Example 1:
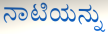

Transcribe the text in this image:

ನಾಟಿಯನ್ನು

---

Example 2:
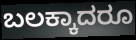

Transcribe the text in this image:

ಬಲಕ್ಕಾದರೂ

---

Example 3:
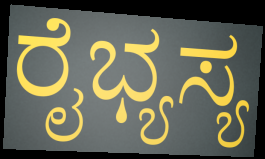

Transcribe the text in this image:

ರೈಭ್ಯಸ್ಯ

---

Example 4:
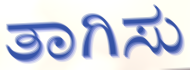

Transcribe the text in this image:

ತಾಗಿಸು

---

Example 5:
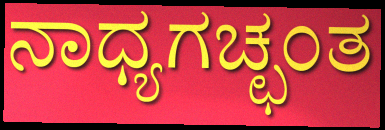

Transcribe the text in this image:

ನಾಧ್ಯಗಚ್ಛಂತ